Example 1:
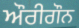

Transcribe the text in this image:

ਔਰੀਗੌਨ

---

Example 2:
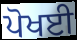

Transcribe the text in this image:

ਪੋਖਈ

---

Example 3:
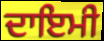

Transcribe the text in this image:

ਦਾਇਮੀ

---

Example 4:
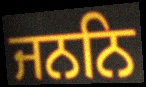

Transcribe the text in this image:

ਜਨਨਿ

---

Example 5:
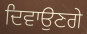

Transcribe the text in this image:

ਦਿਵਾਉਣਗੇ